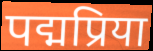
पद्मप्रिया